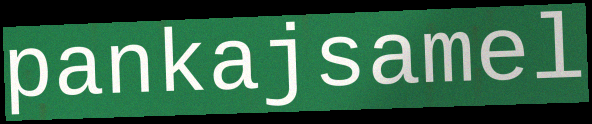
pankajsamel